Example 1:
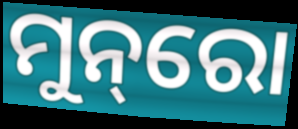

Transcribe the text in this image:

ମୁନ୍‌ରୋ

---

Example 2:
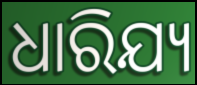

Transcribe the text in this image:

ଧାରିଯ୍ୟ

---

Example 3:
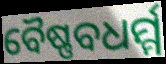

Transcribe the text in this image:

ବୈଷ୍ଣବଧର୍ମ୍ମ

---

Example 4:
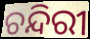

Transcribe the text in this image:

ଚନ୍ଦିରୀ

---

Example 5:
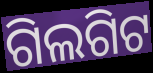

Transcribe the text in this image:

ଗିଲଗିଟ